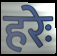
हरेः